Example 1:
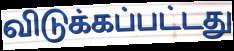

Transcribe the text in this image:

விடுக்கப்பட்டது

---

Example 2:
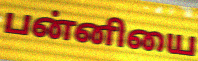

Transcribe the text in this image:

பன்னியை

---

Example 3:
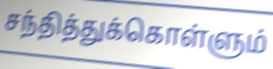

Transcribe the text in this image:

சந்தித்துக்கொள்ளும்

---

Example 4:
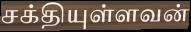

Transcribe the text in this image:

சக்தியுள்ளவன்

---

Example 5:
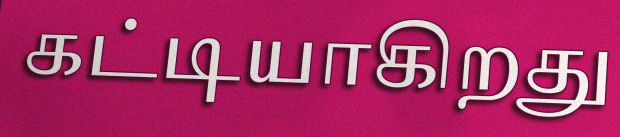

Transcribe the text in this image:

கட்டியாகிறது